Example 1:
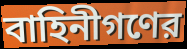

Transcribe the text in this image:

বাহিনীগণের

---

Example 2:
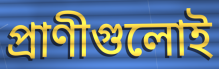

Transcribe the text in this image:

প্রাণীগুলোই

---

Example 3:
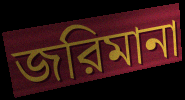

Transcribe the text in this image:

জরিমানা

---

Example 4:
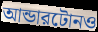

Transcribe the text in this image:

আন্ডারটোনও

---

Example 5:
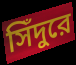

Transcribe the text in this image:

সিঁদুরে